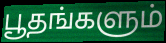
பூதங்களும்